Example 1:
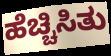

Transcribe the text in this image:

ಹೆಚ್ಚಿಸಿತು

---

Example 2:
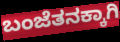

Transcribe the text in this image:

ಬಂಜೆತನಕ್ಕಾಗಿ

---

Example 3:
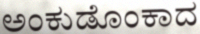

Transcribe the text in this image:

ಅಂಕುಡೊಂಕಾದ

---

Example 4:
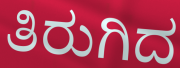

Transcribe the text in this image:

ತಿರುಗಿದ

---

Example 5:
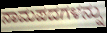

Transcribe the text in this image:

ನಾಮಪದಗಳನ್ನು